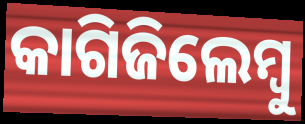
କାଗିଜିଲେମ୍ବୁ